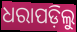
ଧରାପଡ଼ିଲୁ